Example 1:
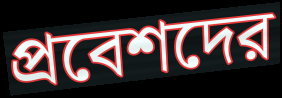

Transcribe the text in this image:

প্রবেশদের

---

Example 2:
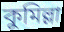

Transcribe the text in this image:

কুমিল্লা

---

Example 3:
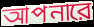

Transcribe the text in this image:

আপনারে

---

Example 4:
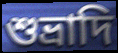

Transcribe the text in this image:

শুভ্রাদি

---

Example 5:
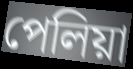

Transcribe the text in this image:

পেলিয়া